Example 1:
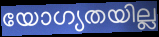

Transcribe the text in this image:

യോഗ്യതയില്ല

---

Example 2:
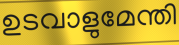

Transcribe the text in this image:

ഉടവാളുമേന്തി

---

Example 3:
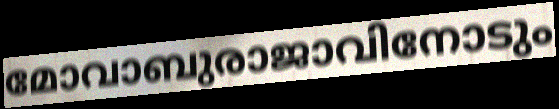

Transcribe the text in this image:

മോവാബുരാജാവിനോടും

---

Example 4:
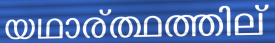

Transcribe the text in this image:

യഥാര്ത്ഥത്തില്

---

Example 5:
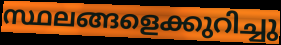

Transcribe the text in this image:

സ്ഥലങ്ങളെക്കുറിച്ചു